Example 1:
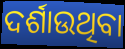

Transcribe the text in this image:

ଦର୍ଶାଉଥିବା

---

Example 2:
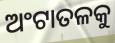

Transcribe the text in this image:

ଅଂଟାତଳକୁ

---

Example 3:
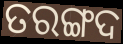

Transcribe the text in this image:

ତରଙ୍ଗଦ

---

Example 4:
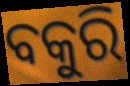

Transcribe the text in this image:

ବକୁରି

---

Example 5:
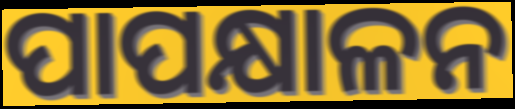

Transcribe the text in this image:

ପାପକ୍ଷାଳନ